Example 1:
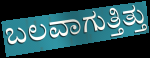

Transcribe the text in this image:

ಬಲವಾಗುತ್ತಿತ್ತು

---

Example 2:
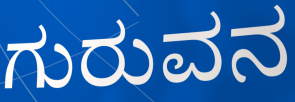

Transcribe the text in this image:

ಗುರುವನ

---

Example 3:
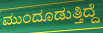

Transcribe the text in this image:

ಮುಂದೂಡುತ್ತಿದ್ದೆ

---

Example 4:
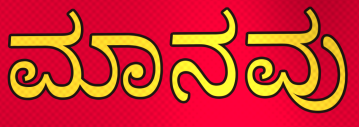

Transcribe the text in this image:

ಮಾನವು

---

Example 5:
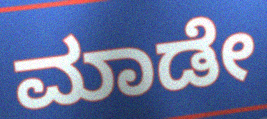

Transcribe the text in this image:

ಮಾಡೇ